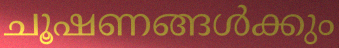
ചൂഷണങ്ങൾക്കും